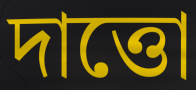
দাত্তো